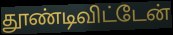
தூண்டிவிட்டேன்